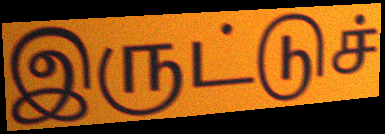
இருட்டுச்